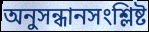
অনুসন্ধানসংশ্লিষ্ট